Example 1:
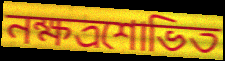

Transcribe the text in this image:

নক্ষত্রশোভিত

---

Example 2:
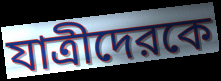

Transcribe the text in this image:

যাত্রীদেরকে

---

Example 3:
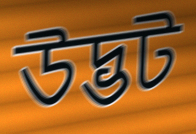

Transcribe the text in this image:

উদ্ভট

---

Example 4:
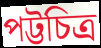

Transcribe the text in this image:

পট্টচিত্র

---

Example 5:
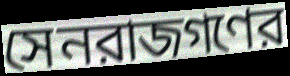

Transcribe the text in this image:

সেনরাজগণের